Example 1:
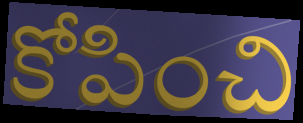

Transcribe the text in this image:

కోపించి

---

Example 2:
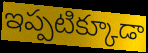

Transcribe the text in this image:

ఇప్పటిక్కూడా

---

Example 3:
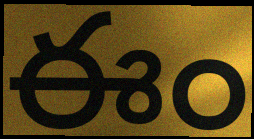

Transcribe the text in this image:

ఈం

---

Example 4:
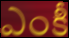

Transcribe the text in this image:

ఎంకీ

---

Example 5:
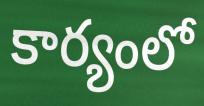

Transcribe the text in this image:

కార్యంలో